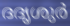
ദദൃശുർ